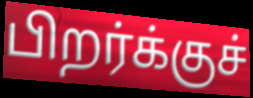
பிறர்க்குச்